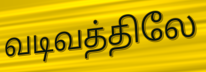
வடிவத்திலே